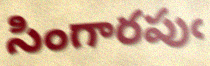
సింగారపుఁ